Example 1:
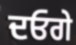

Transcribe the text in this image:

ਦਓਗੇ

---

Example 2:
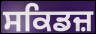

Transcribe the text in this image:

ਸਕਿਡਜ਼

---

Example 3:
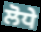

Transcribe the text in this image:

ਲੋਧੇ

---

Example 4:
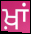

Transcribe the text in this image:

ਖ਼ਾਂ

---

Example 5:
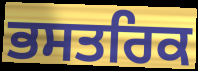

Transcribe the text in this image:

ਭਸਤਰਿਕ